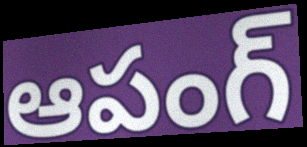
ఆపంగ్